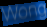
Wong